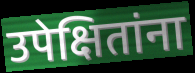
उपेक्षितांना